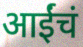
आईंचं